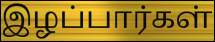
இழப்பார்கள்